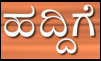
ಹದ್ದಿಗೆ